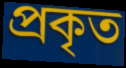
প্ৰকৃত